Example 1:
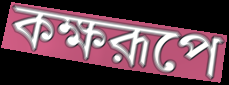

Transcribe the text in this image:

কক্ষরূপে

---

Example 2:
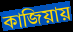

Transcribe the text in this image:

কাজিয়ায়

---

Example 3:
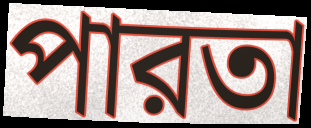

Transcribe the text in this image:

পারতা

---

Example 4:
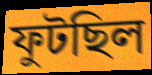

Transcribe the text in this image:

ফুটছিল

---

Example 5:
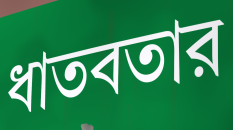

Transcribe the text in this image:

ধাতবতার